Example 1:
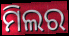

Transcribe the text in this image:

ମିଲର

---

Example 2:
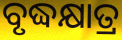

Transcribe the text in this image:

ବୃଦ୍ଧକ୍ଷାତ୍ର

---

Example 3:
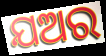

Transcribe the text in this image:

ଯଅର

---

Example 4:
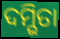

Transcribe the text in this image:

ଦମ୍ଭିତା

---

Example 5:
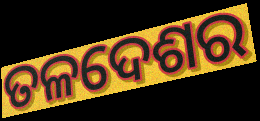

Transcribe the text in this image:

ତଳଦେଶର